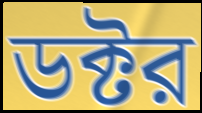
ডক্টর